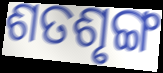
ଶତଶୃଙ୍ଗ